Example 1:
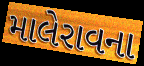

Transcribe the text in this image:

માલેરાવના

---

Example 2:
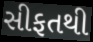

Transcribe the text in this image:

સીફતથી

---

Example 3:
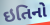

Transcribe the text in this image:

ઇતિનો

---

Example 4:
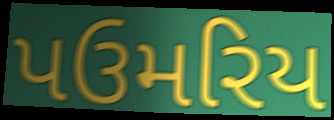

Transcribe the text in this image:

પઉમરિય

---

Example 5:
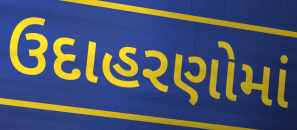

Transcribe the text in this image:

ઉદાહરણોમાં